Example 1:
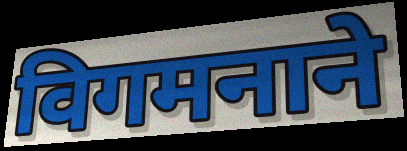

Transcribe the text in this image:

विगमनाने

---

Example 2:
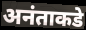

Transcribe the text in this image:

अनंताकडे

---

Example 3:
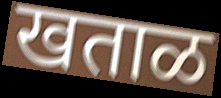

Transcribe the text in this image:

खताळ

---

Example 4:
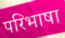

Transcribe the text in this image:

परिभाषा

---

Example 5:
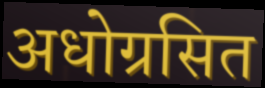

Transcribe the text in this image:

अधोग्रसित